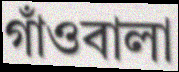
গাঁওবালা